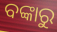
ବଙ୍କାରୁ